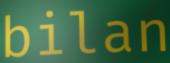
bilan